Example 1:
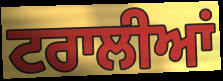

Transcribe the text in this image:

ਟਰਾਲੀਆਂ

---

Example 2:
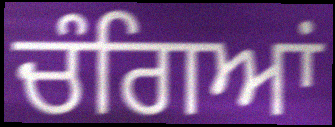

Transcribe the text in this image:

ਚੰਗਿਆਂ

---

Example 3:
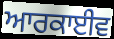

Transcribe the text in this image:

ਆਰਕਾਈਵ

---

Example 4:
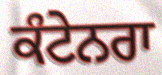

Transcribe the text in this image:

ਕੰਟੇਨਰਾ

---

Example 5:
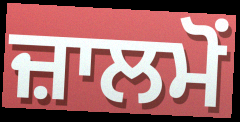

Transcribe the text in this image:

ਜ਼ਾਲਮੋਂ